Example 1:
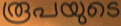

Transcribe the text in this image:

രൂപയുടെ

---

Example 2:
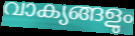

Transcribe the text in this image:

വാക്യങ്ങളും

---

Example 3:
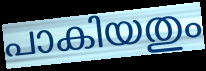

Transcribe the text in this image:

പാകിയതും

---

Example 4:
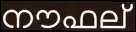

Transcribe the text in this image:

നൗഫല്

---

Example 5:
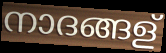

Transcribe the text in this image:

നാദങ്ങള്